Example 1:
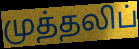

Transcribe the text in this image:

முத்தலிப்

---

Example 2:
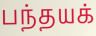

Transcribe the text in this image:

பந்தயக்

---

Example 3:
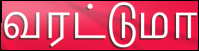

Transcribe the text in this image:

வரட்டுமா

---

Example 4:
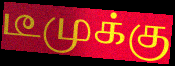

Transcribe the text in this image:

டீமுக்கு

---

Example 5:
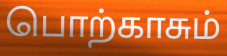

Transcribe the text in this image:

பொற்காசும்